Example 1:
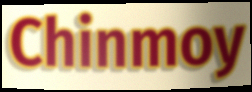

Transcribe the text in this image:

Chinmoy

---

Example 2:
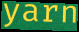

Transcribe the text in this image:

yarn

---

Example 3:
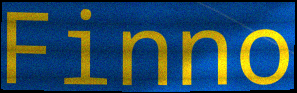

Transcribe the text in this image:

Finno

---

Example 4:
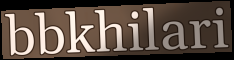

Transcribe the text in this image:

bbkhilari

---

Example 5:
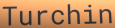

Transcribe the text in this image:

Turchin